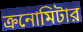
ক্রনোমিটার